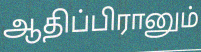
ஆதிப்பிரானும்